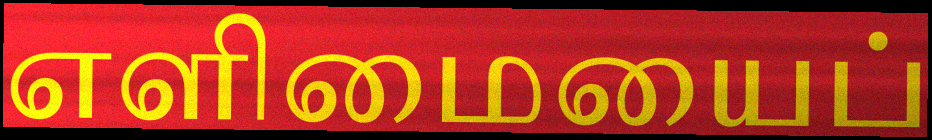
எளிமையைப்